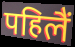
पहिलैं